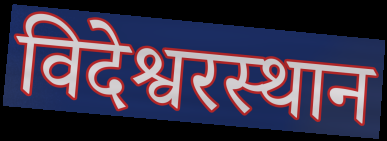
विदेश्वरस्थान